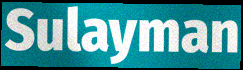
Sulayman